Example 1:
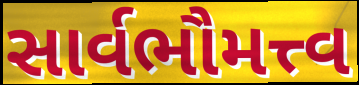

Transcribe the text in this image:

સાર્વભૌમત્ત્વ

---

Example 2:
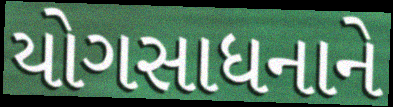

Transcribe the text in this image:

યોગસાધનાને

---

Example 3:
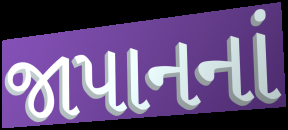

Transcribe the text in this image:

જાપાનનાં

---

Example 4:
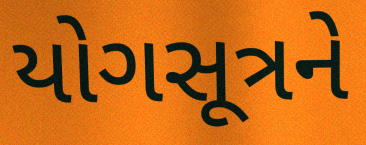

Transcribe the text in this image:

યોગસૂત્રને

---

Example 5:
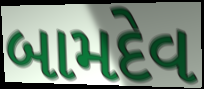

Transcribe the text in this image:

બામદેવ